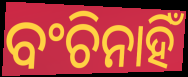
ବଂଚିନାହିଁ